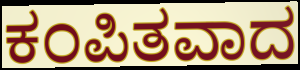
ಕಂಪಿತವಾದ